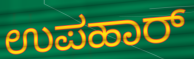
ಉಪಹಾರ್